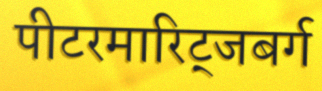
पीटरमारिट्जबर्ग